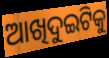
ଆଖିଦୁଇଟିକୁ